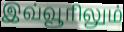
இவ்வூரிலும்